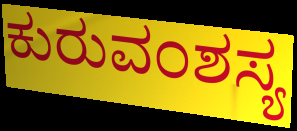
ಕುರುವಂಶಸ್ಯ